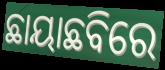
ଛାୟାଛବିରେ